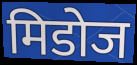
मिडोज